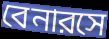
বেনারসে